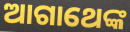
ଆଗାଥେଙ୍କ